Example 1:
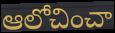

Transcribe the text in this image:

ఆలోచించా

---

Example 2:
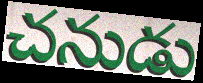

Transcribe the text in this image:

చనుడు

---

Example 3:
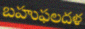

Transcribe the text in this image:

బహుఫలదళ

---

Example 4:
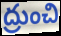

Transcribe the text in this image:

ద్రుంచి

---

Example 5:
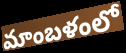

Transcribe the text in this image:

మాంబళంలో